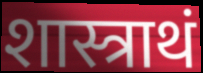
शास्त्राथं